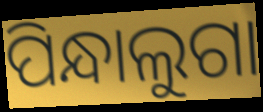
ପିନ୍ଧାଲୁଗା